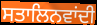
ਸਤਾਲਿਨਵਾਂਦੀ